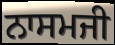
ਨਾਸਮਜੀ